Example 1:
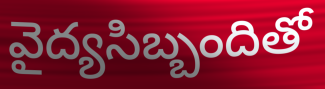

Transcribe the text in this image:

వైద్యసిబ్బందితో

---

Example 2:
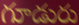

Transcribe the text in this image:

గూడురు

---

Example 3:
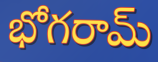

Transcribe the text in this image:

భోగరామ్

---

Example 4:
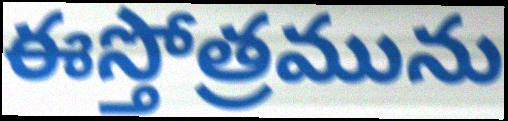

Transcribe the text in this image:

ఈస్తోత్రమును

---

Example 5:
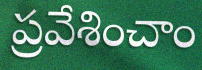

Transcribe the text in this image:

ప్రవేశించాం